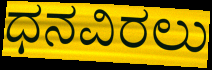
ಧನವಿರಲು